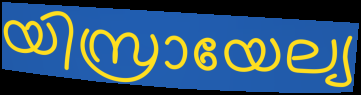
യിസ്രായേല്യ